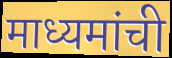
माध्यमांची